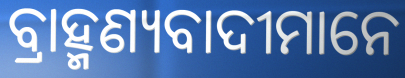
ବ୍ରାହ୍ମଣ୍ୟବାଦୀମାନେ